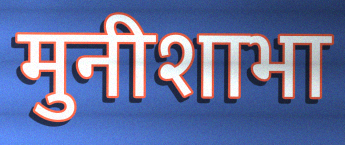
मुनीशाभा